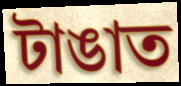
টাঙাত